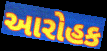
આરોહક